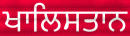
ਖਾਲਿਸਤਾਨ